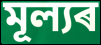
মূল্যৰ